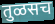
तुळसच